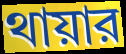
থায়ার